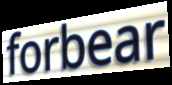
forbear